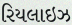
રિયલાઇઝ